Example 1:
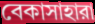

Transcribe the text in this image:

বেকাসাহারা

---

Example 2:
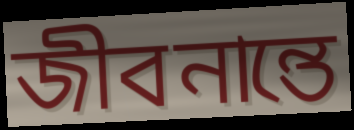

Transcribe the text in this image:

জীবনান্তে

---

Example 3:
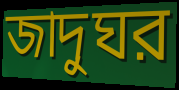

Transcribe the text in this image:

জাদুঘর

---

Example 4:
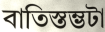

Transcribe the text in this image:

বাতিস্তম্ভটা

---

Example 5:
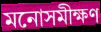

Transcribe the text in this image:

মনোসমীক্ষণ